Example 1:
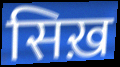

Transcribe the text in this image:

सिख़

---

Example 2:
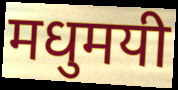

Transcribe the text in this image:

मधुमयी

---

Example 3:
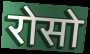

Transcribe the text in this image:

रोसो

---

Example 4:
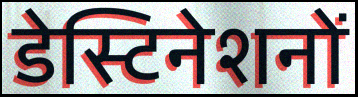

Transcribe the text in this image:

डेस्टिनेशनों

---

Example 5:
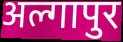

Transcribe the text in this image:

अल्गापुर